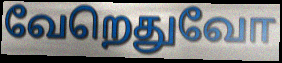
வேறெதுவோ